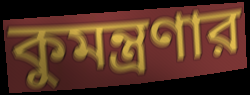
কুমন্ত্রণার